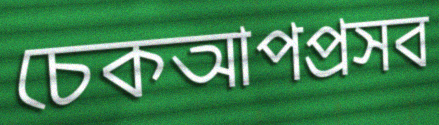
চেকআপপ্রসব